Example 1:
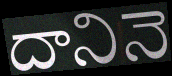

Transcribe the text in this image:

దానినె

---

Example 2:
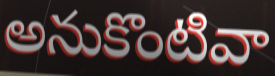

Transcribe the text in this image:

అనుకొంటివా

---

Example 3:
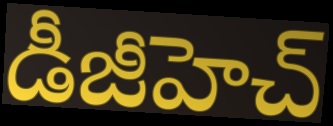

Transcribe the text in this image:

డీజీహెచ్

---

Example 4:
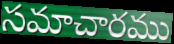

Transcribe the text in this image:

సమాచారము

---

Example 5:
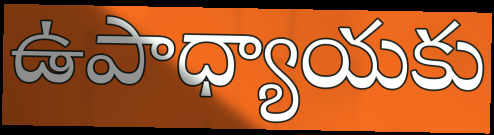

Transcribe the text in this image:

ఉపాధ్యాయకు